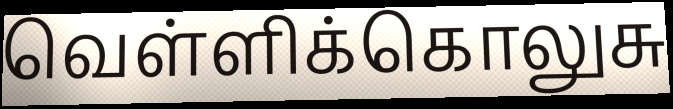
வெள்ளிக்கொலுசு